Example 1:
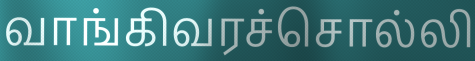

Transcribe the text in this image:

வாங்கிவரச்சொல்லி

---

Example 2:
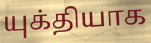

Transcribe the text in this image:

யுக்தியாக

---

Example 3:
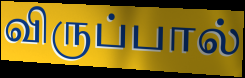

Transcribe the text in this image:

விருப்பால்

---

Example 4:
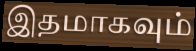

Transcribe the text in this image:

இதமாகவும்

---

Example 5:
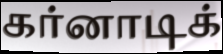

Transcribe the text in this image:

கர்னாடிக்